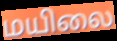
மயிலை